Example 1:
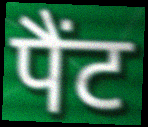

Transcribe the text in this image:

पैंट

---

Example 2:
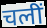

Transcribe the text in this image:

चलीं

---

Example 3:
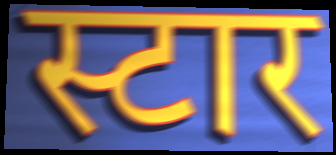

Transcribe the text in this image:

स्टार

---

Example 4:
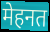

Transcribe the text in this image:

मेहनत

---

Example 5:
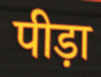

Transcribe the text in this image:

पीड़ा